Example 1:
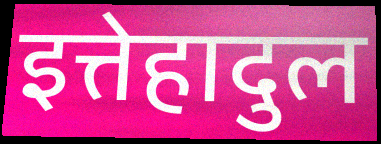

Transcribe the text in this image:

इत्तेहादुल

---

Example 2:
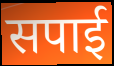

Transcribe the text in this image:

सपाई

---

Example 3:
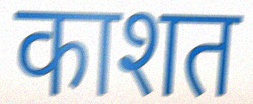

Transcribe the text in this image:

काशत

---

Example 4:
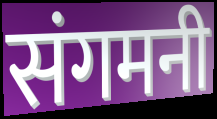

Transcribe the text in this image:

संगमनी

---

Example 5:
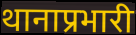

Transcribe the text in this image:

थानाप्रभारी